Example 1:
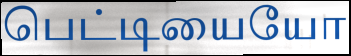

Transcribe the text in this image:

பெட்டியையோ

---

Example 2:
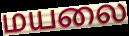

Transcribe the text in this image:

மயலை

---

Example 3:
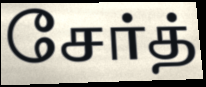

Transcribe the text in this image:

சேர்த்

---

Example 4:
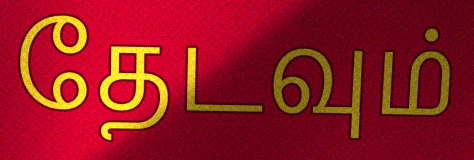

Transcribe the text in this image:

தேடவும்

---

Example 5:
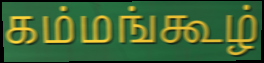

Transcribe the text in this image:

கம்மங்கூழ்